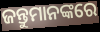
ଜନ୍ତୁମାନଙ୍କରେ